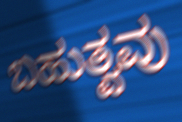
ಬಹುತ್ವವು